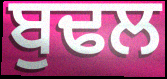
ਬੁਢਲ